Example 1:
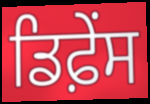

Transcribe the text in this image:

ਡਿਫ਼ੇੰਸ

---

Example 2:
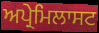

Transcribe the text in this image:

ਅਪ੍ਰੇਮਿਲਾਸਟ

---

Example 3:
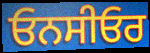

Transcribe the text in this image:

ਓਨਸੀਓਰ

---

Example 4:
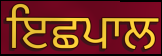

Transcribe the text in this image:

ਇਛਪਾਲ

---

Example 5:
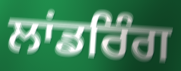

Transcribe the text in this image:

ਲਾਂਡਰਿੰਗ